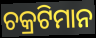
ଚକ୍ରଟିମାନ